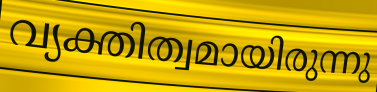
വ്യക്തിത്വമായിരുന്നു